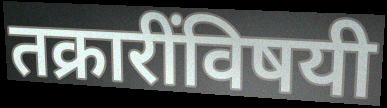
तक्रारींविषयी